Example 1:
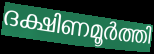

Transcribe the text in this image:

ദക്ഷിണമൂർത്തി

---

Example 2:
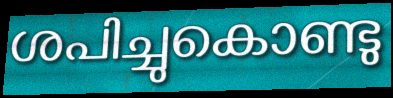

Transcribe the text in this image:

ശപിച്ചുകൊണ്ടു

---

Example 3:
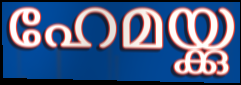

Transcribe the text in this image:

ഹേമയ്ക്കു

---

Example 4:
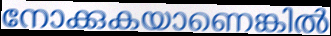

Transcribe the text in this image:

നോക്കുകയാണെങ്കിൽ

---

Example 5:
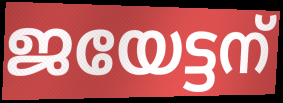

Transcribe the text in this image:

ജയേട്ടന്